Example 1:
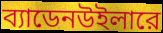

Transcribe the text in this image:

ব্যাডেনউইলারে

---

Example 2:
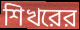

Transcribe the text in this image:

শিখরের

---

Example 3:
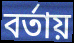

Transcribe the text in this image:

বর্তায়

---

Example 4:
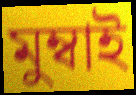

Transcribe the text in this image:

মুম্বাই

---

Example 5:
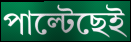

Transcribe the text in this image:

পাল্টেছেই